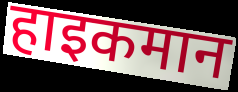
हाइकमान